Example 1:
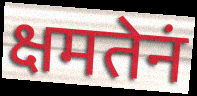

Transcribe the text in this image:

क्षमतेनं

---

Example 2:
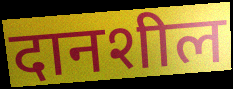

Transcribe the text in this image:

दानशील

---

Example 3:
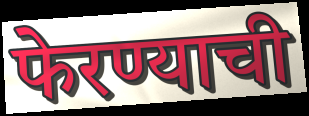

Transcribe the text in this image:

फेरण्याची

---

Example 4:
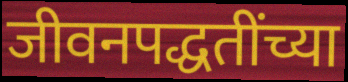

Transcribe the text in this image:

जीवनपद्धतींच्या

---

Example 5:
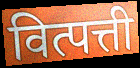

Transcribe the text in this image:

वित्पत्ती